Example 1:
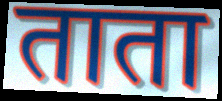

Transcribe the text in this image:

ताता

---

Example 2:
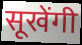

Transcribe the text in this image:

सूखेंगी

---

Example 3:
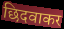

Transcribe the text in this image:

छिदवाकर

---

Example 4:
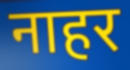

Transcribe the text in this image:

नाहर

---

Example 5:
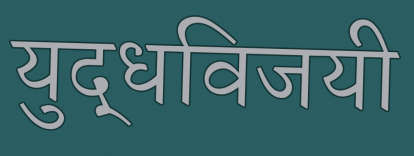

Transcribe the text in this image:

युद्धविजयी